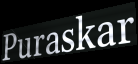
Puraskar